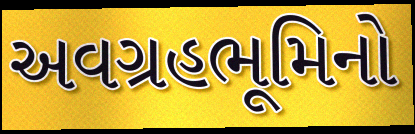
અવગ્રહભૂમિનો